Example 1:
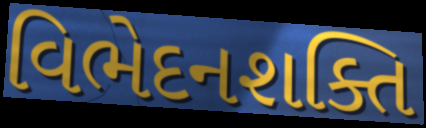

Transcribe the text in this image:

વિભેદનશક્તિ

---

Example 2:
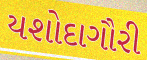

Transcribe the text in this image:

યશોદાગૌરી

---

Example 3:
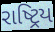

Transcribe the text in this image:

રાષ્ટ્રિય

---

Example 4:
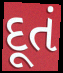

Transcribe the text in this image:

દૂતં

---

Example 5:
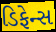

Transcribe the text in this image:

ડિફેન્સ